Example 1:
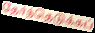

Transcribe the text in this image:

தேர்ந்தெடுக்கப்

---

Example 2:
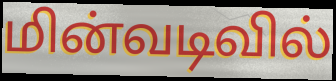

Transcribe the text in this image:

மின்வடிவில்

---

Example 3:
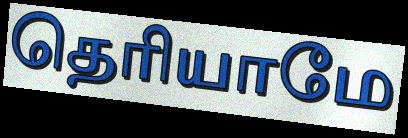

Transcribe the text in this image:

தெரியாமே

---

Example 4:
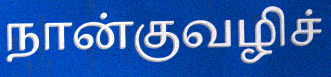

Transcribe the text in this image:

நான்குவழிச்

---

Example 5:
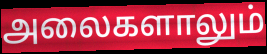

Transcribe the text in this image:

அலைகளாலும்